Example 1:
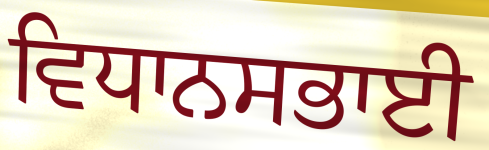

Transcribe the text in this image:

ਵਿਧਾਨਸਭਾਈ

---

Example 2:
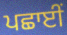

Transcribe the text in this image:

ਪਛਾਈਂ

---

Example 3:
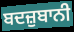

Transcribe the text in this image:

ਬਦਜ਼ੁਬਾਨੀ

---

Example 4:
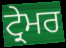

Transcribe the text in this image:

ਟ੍ਰੇਮਰ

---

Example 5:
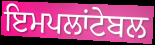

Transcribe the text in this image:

ਇਮਪਲਾਂਟੇਬਲ